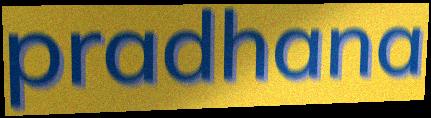
pradhana